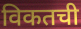
विकतची